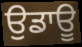
ਉਡਾਊ